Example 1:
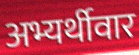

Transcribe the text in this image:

अभ्यर्थीवार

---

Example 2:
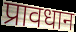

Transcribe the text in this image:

प्रावधान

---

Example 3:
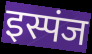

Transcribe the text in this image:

इस्पंज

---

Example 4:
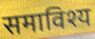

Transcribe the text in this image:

समाविश्य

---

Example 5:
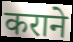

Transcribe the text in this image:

कराने